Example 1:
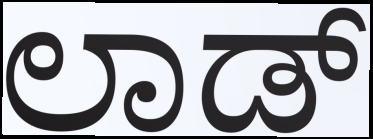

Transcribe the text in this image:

ಲಾಡ್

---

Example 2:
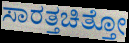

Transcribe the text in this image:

ಸಾರತ್ತಚಿತ್ತೋ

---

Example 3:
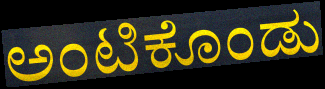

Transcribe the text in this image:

ಅಂಟಿಕೊಂಡು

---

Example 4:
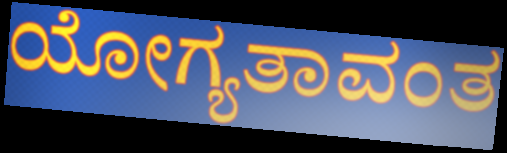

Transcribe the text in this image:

ಯೋಗ್ಯತಾವಂತ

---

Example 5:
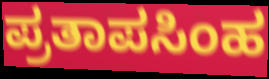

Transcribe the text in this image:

ಪ್ರತಾಪಸಿಂಹ